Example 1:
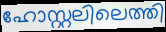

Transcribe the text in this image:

ഹോസ്റ്റലിലെത്തി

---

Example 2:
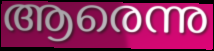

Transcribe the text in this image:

ആരെന്നു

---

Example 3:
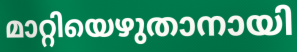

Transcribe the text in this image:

മാറ്റിയെഴുതാനായി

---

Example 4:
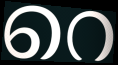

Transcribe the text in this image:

റെ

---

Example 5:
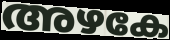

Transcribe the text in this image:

അഴകേ